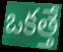
ఒకత్తే